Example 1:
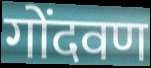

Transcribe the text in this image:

गोंदवण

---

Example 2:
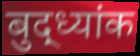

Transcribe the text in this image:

बुद्ध्यांक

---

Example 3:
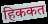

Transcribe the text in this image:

हिककत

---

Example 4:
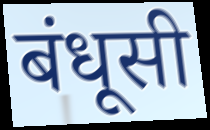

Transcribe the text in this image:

बंधूसी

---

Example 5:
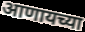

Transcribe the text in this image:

आणायच्या